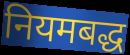
नियमबद्ध